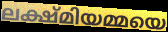
ലക്ഷ്മിയമ്മയെ